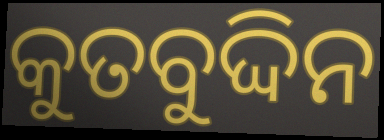
କୁତବୁଦ୍ଦିନ